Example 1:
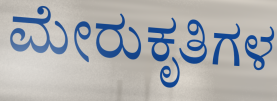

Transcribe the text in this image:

ಮೇರುಕೃತಿಗಳ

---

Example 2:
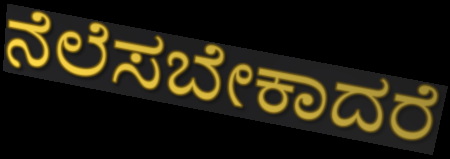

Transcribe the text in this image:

ನೆಲೆಸಬೇಕಾದರೆ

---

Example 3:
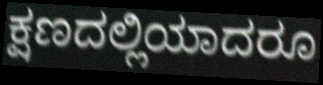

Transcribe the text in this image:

ಕ್ಷಣದಲ್ಲಿಯಾದರೂ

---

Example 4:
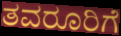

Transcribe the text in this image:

ತವರೂರಿಗೆ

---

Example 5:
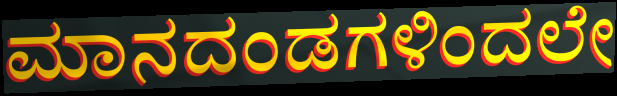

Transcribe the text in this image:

ಮಾನದಂಡಗಳಿಂದಲೇ